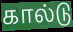
கால்டு